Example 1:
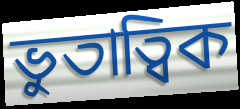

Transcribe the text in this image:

ভুতাত্বিক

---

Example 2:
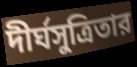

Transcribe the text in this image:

দীর্ঘসুত্রিতার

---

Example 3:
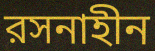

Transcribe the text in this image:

রসনাহীন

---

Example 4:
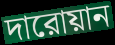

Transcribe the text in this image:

দারোয়ান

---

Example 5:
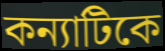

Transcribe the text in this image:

কন্যাটিকে